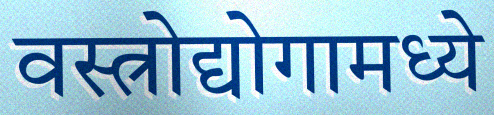
वस्त्रोद्योगामध्ये